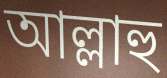
আল্লাহু